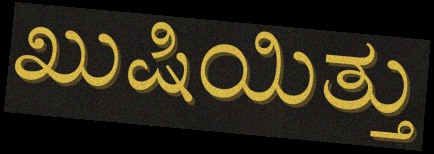
ಖುಷಿಯಿತ್ತು